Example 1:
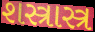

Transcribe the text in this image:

શસ્ત્રાસ્ત્ર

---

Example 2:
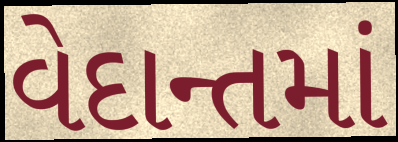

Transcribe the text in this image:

વેદાન્તમાં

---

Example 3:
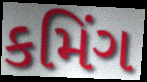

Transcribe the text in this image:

કમિંગ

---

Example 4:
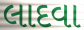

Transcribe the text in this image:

લાદવા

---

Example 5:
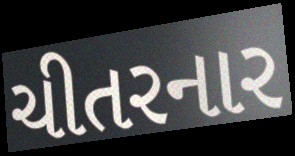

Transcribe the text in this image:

ચીતરનાર